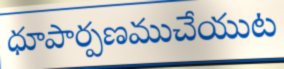
ధూపార్పణముచేయుట